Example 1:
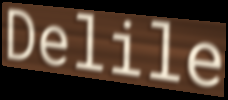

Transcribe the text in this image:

Delile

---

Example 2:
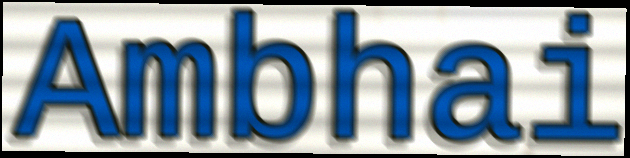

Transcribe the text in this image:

Ambhai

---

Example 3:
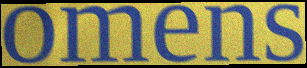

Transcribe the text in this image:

omens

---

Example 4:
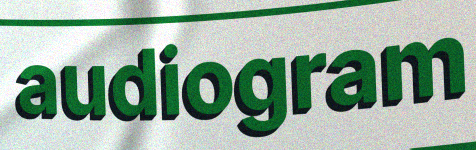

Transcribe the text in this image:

audiogram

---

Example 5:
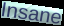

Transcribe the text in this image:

Insane